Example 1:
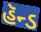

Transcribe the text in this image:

હૅન્ડ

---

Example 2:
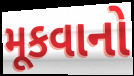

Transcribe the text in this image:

મૂકવાનો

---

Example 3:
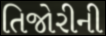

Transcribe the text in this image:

તિજોરીની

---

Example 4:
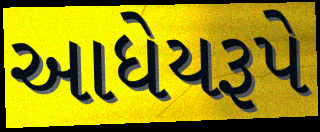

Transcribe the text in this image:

આધેયરૂપે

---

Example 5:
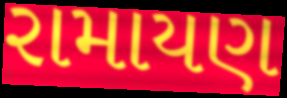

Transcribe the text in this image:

રામાયણ